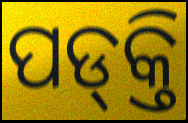
ପଡ୍‌କ୍ତି